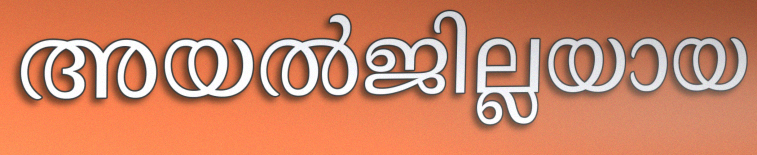
അയൽജില്ലയായ